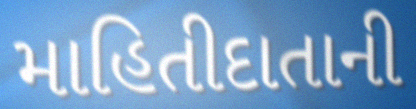
માહિતીદાતાની